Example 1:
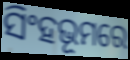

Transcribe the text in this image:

ସିଂହଭୂମରେ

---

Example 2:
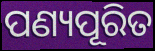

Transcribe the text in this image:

ପଣ୍ୟପୂରିତ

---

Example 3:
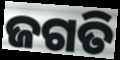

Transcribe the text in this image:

ଜଗତି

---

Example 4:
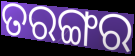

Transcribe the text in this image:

ତରଙ୍ଗର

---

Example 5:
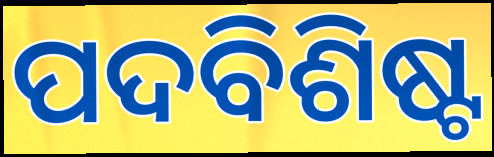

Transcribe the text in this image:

ପଦବିଶିଷ୍ଟ